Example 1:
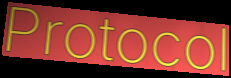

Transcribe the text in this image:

Protocol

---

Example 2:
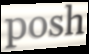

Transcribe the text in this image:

posh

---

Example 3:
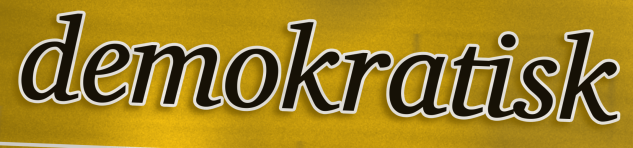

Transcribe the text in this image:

demokratisk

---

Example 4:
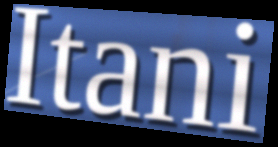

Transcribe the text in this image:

Itani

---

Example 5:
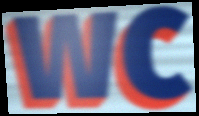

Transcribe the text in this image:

wc